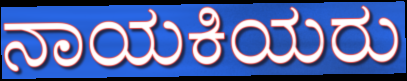
ನಾಯಕಿಯರು